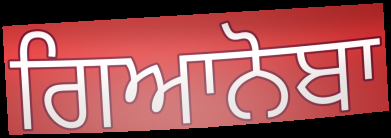
ਗਿਆਨੋਬਾ